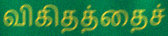
விகிதத்தைச்